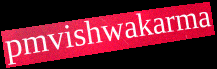
pmvishwakarma